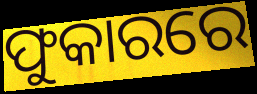
ଫୁକାରରେ